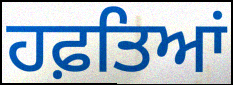
ਹਫ਼ਤਿਆਂ